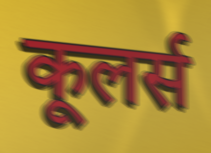
कूलर्स